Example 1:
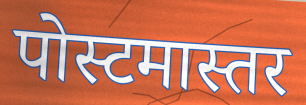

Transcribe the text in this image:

पोस्टमास्तर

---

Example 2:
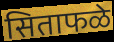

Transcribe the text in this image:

सिताफळे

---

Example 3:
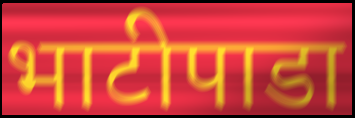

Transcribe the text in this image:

भाटीपाडा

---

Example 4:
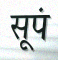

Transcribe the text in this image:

सूपं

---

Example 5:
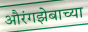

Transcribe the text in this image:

औरंगझेबाच्या